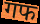
गफ